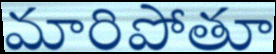
మారిపోతూ